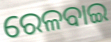
ରେଳବାଇ